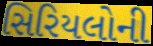
સિરિયલોની